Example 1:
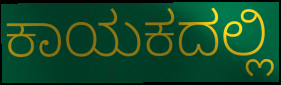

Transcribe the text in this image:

ಕಾಯಕದಲ್ಲಿ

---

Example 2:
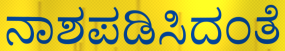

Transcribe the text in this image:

ನಾಶಪಡಿಸಿದಂತೆ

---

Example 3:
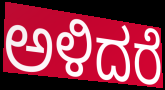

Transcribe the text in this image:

ಅಳಿದರೆ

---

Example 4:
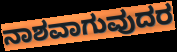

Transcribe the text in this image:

ನಾಶವಾಗುವುದರ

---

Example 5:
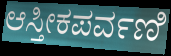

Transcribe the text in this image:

ಆಸ್ತೀಕಪರ್ವಣಿ